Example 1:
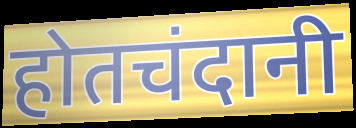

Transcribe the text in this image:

होतचंदानी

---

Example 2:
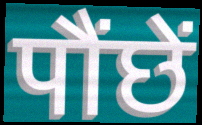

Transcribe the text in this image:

पौंछें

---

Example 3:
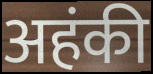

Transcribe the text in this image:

अहंकी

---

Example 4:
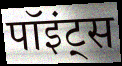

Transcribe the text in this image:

पॉइंट्स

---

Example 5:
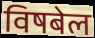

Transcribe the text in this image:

विषबेल